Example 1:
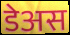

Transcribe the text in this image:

डेअस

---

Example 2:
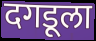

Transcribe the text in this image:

दगडूला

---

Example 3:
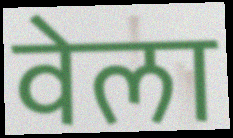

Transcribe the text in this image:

वेला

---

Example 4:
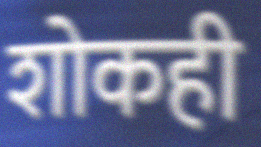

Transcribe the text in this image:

शोकही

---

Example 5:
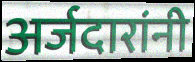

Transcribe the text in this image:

अर्जदारांनी